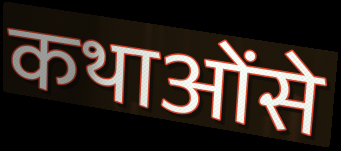
कथाओंसे